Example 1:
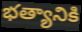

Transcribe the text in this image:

భత్యానికి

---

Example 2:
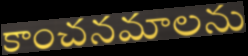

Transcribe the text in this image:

కాంచనమాలను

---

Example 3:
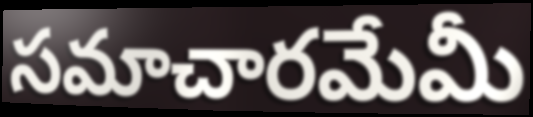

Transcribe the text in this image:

సమాచారమేమీ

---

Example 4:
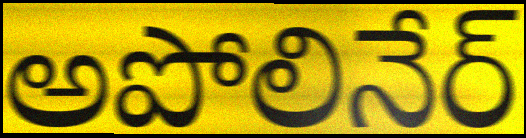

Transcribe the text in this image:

అపోలినేర్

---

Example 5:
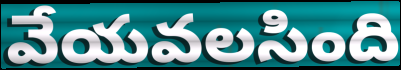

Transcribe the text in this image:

వేయవలసింది